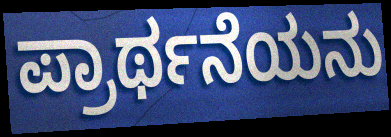
ಪ್ರಾರ್ಥನೆಯನು